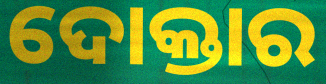
ଦୋକ୍ତାର